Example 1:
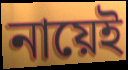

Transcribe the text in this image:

নায়েই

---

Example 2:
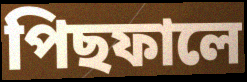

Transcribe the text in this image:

পিছফালে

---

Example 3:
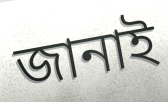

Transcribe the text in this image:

জানাই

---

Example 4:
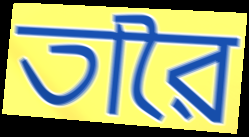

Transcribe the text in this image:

তাৱৈ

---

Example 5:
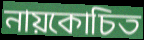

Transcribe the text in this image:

নায়কোচিত